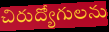
చిరుద్యోగులను